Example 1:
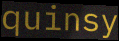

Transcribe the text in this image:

quinsy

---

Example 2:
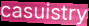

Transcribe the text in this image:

casuistry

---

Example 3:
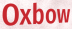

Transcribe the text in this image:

Oxbow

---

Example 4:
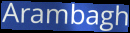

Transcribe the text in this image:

Arambagh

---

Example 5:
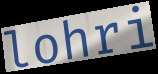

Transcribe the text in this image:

lohri